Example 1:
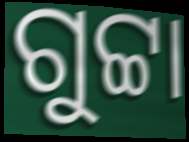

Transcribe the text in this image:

ଗୁଟ୍ଟା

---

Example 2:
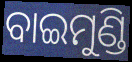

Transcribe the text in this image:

ବାଇମୁଣ୍ଡି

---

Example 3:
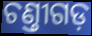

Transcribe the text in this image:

ଚଣ୍ତୀଗଡ଼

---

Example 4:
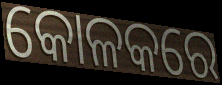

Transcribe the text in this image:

କୋଳକରେ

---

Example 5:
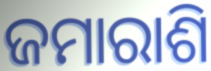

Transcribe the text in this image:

ଜମାରାଶି